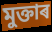
মুক্তাৰ